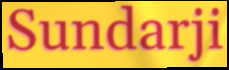
Sundarji